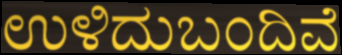
ಉಳಿದುಬಂದಿವೆ